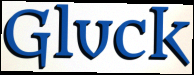
Gluck